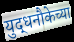
युद्धनौकेच्या